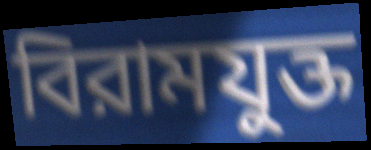
বিরামযুক্ত